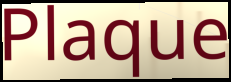
Plaque